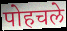
पोहचले